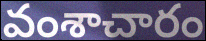
వంశాచారం